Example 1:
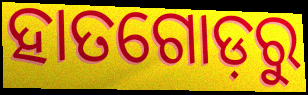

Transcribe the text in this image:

ହାତଗୋଡ଼ରୁ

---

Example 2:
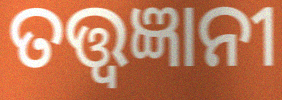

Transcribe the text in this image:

ତତ୍ତ୍ଵଜ୍ଞାନୀ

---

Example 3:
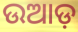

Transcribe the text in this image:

ଉଆଡ଼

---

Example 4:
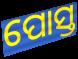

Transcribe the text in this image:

ପୋସ୍ତ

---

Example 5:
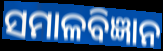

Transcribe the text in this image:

ସମାଳବିଜ୍ଞାନ